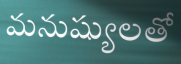
మనుష్యులతో